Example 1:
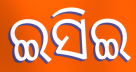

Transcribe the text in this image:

ଇସିଇ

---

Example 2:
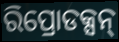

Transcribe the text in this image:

ରିପ୍ରୋଡକ୍ସନ୍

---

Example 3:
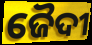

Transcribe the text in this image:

ଜୈଦୀ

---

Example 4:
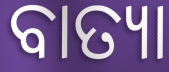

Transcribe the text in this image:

ବାତ୍ଯା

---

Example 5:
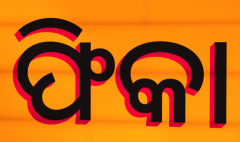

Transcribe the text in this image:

ଫିକା